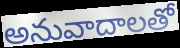
అనువాదాలతో